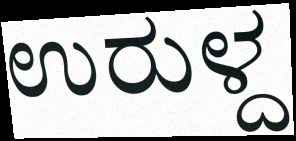
ಉರುಳ್ದ